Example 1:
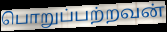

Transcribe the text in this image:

பொறுப்பற்றவன்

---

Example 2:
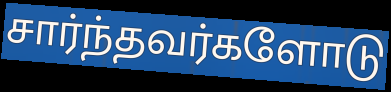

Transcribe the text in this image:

சார்ந்தவர்களோடு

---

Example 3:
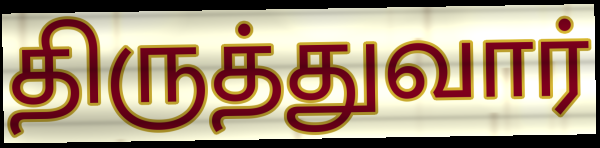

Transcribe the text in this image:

திருத்துவார்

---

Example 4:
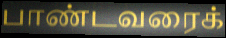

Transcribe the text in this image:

பாண்டவரைக்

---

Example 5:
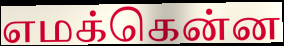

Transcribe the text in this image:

எமக்கென்ன